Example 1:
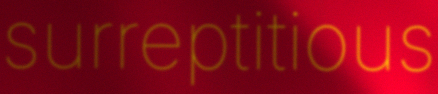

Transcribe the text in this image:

surreptitious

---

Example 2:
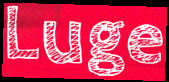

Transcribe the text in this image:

Luge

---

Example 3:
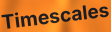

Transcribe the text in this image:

Timescales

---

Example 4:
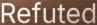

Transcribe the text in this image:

Refuted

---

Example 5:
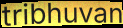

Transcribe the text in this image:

tribhuvan